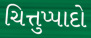
ચિત્તુપ્પાદો